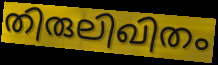
തിരുലിഖിതം